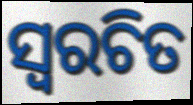
ସ୍ଵରଚିତ